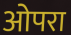
ओपरा